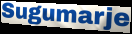
Sugumarje